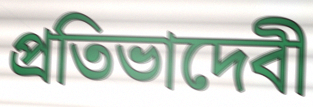
প্রতিভাদেবী